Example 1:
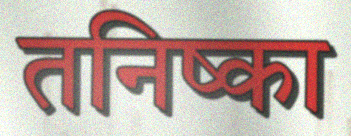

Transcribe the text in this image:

तनिष्का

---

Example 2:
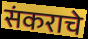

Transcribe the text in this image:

संकराचे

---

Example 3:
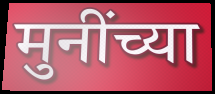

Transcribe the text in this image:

मुनींच्या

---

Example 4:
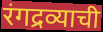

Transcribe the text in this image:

रंगद्रव्याची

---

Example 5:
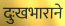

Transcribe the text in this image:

दुःखभाराने